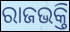
ରାଜଭକ୍ତି